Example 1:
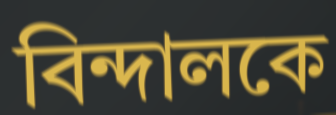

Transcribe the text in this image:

বিন্দালকে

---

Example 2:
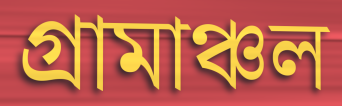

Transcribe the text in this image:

গ্রামাঞ্চল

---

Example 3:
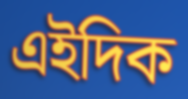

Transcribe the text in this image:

এইদিক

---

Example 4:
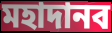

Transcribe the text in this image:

মহাদানব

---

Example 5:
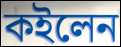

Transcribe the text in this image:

কইলেন